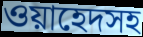
ওয়াহেদসহ